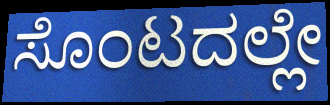
ಸೊಂಟದಲ್ಲೇ